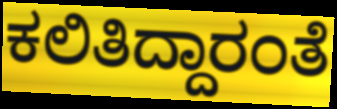
ಕಲಿತಿದ್ದಾರಂತೆ